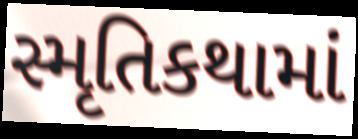
સ્મૃતિકથામાં